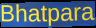
Bhatpara